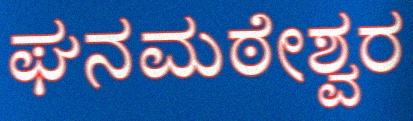
ಘನಮಠೇಶ್ವರ